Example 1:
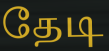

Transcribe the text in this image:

தேடி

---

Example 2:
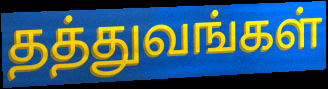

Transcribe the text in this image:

தத்துவங்கள்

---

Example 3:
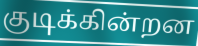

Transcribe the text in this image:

குடிக்கின்றன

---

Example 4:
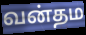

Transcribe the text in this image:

வன்தம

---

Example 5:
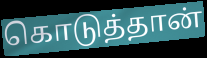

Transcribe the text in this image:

கொடுத்தான்